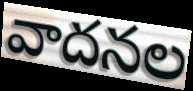
వాదనల